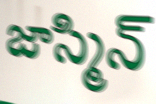
జాస్మిన్